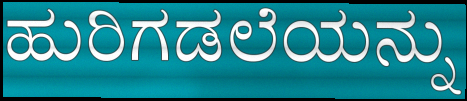
ಹುರಿಗಡಲೆಯನ್ನು